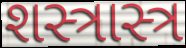
શસ્ત્રાસ્ત્ર